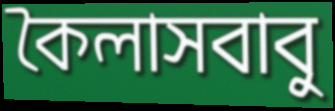
কৈলাসবাবু